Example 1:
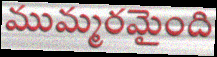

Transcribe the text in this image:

ముమ్మరమైంది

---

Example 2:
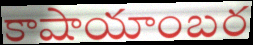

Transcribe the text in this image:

కాషాయాంబర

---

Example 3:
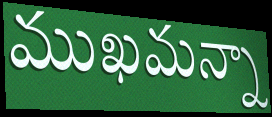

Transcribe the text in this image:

ముఖమన్నా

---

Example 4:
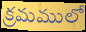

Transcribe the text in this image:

క్రమములో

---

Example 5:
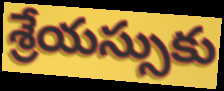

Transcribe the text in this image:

శ్రేయస్సుకు